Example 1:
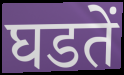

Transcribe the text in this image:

घडतें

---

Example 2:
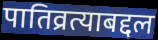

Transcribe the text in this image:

पातिव्रत्याबद्दल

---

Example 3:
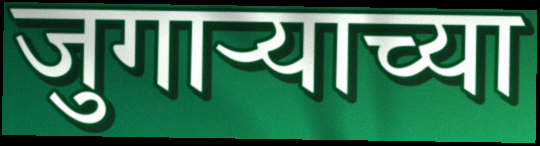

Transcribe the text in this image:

जुगाऱ्याच्या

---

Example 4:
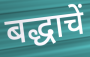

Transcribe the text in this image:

बद्धाचें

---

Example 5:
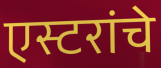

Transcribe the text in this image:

एस्टरांचे